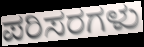
ಪರಿಸರಗಳು